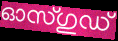
ഓസ്ഗുഡ്